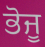
ਭੋਜੂ